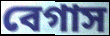
বেগাস